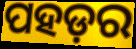
ପହଡ଼ର